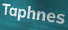
Taphnes